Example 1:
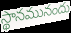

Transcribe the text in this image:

స్థానమునందు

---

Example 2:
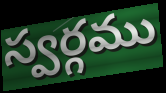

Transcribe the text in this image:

స్వర్గము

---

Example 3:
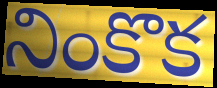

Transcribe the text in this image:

నింకొక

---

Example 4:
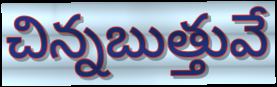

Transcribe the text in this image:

చిన్నబుత్తువే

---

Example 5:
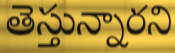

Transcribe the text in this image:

తెస్తున్నారని